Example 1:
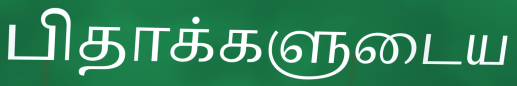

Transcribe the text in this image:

பிதாக்களுடைய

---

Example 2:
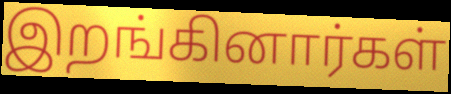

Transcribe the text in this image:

இறங்கினார்கள்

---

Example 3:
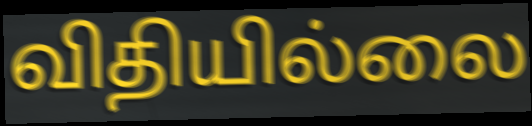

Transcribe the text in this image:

விதியில்லை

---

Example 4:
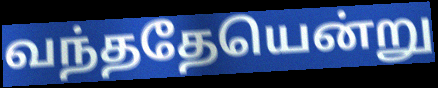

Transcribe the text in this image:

வந்ததேயென்று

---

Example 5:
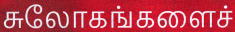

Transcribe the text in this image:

சுலோகங்களைச்